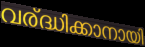
വര്ദ്ധിക്കാനായി